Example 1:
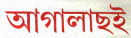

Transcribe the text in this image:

আগালাছই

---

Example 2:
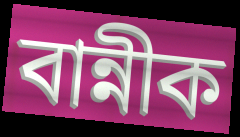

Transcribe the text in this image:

বান্নীক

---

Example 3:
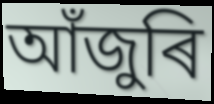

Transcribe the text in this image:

আঁজুৰি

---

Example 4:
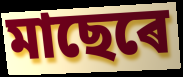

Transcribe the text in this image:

মাছেৰে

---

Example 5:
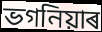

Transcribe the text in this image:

ভগনিয়াৰ